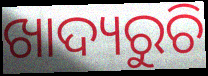
ଖାଦ୍ୟରୁଚି